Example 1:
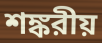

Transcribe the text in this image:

শঙ্করীয়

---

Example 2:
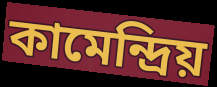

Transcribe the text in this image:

কামেন্দ্রিয়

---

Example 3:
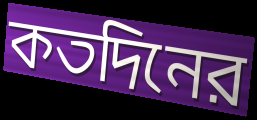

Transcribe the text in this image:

কতদিনের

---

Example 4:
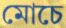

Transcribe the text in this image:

মোচে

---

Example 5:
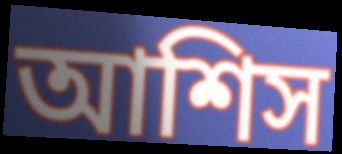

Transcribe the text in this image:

আশিস